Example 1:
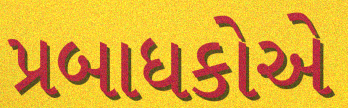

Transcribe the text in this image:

પ્રબાધકોએ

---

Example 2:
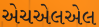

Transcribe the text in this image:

એચએલએલ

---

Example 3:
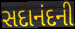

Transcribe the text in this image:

સદાનંદની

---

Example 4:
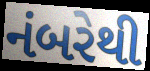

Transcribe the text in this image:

નંબરેથી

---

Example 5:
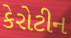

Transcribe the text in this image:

કેરોટીન